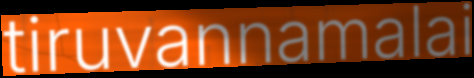
tiruvannamalai